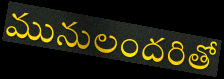
మునులందరితో